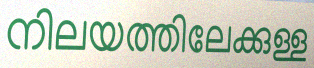
നിലയത്തിലേക്കുള്ള